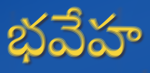
భవేహ